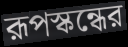
রূপস্কন্ধের